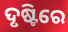
ଦୃଷ୍ଟିରେ